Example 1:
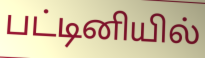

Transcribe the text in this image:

பட்டினியில்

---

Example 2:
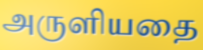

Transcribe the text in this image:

அருளியதை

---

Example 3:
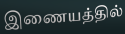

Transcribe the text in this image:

இணையத்தில்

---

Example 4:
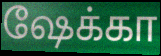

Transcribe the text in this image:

ஷேக்கா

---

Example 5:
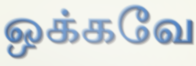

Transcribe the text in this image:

ஒக்கவே